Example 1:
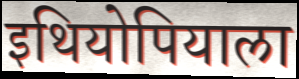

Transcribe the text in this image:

इथियोपियाला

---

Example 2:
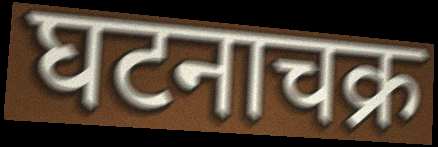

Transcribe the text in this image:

घटनाचक्र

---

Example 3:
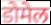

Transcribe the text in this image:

डोमेल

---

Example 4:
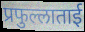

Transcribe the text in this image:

प्रफुल्लाताई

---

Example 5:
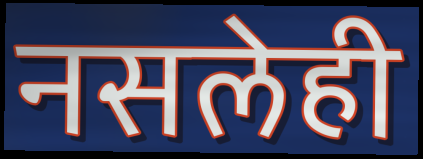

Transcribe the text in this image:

नसलेही